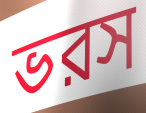
ভরস